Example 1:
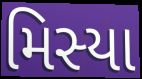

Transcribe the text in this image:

મિસ્યા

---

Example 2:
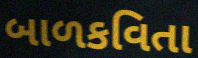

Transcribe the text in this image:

બાળકવિતા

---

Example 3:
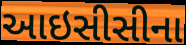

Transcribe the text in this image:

આઇસીસીના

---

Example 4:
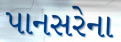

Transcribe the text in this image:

પાનસરેના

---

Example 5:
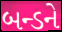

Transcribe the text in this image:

બન્ડને